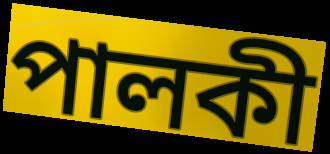
পালকী